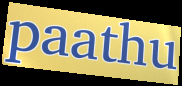
paathu